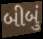
બીબું